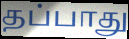
தப்பாது